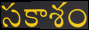
సకాశం